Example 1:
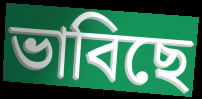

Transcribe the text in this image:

ভাবিছে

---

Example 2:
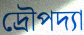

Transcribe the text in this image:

দ্রৌপদ্যা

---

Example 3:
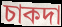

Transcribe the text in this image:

চাকদা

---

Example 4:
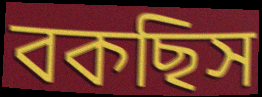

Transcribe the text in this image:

বকছিস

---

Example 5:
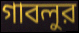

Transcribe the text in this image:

গাবলুর